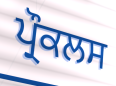
ਪ੍ਰੌਕਲਸ